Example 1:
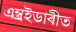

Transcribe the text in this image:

এম্ব্ৰইডাৰীত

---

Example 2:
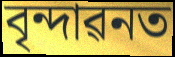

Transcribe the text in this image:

বৃন্দাৱনত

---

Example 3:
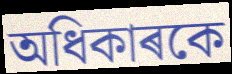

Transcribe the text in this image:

অধিকাৰকে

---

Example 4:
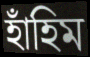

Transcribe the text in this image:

হাঁহিম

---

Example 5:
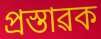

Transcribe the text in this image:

প্ৰস্তাৱক